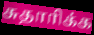
சுதாரிக்க